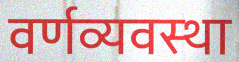
वर्णव्यवस्था